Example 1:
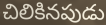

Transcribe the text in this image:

చిలికినపుడు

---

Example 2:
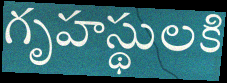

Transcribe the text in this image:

గృహస్థులకి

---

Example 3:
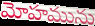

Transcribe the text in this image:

మోహమును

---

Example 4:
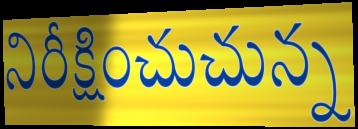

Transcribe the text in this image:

నిరీక్షించుచున్న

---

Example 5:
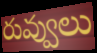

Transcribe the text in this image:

రువ్వులు